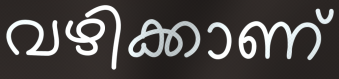
വഴിക്കാണ്